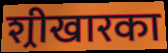
श्रीखारका